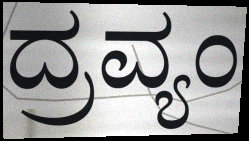
ದ್ರವ್ಯಂ